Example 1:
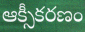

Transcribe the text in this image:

ఆక్సీకరణం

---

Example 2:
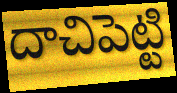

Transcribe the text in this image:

దాచిపెట్టి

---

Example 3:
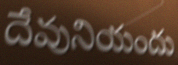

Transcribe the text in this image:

దేవునియందు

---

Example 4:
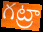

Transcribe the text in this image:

గట్రా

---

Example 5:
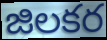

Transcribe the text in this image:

జిలకర